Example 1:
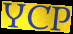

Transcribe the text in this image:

YCP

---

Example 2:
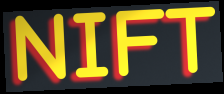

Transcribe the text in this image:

NIFT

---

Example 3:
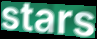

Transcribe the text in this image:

stars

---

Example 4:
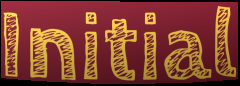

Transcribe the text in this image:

Initial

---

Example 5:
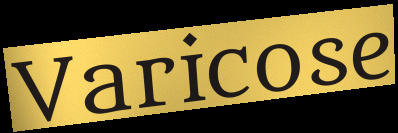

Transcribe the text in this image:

Varicose